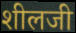
शीलजी